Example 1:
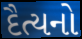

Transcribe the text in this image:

દૈત્યનો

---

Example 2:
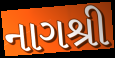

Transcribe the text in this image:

નાગશ્રી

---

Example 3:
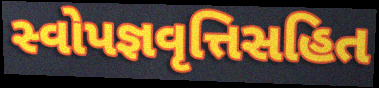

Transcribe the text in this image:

સ્વોપજ્ઞવૃત્તિસહિત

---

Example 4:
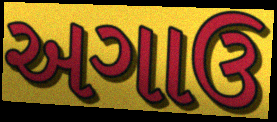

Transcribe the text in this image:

અગાઉ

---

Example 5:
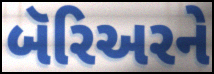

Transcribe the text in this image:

બૅરિઅરને